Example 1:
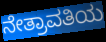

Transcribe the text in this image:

ನೇತ್ರಾವತಿಯ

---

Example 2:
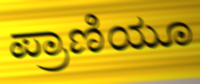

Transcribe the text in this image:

ಪ್ರಾಣಿಯೂ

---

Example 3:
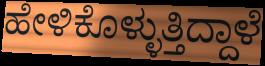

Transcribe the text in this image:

ಹೇಳಿಕೊಳ್ಳುತ್ತಿದ್ದಾಳೆ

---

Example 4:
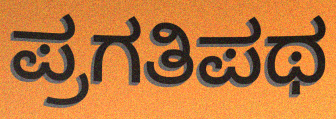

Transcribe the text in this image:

ಪ್ರಗತಿಪಥ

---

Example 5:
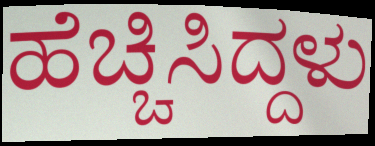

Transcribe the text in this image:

ಹೆಚ್ಚಿಸಿದ್ದಳು